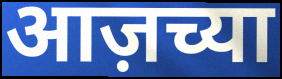
आज़च्या